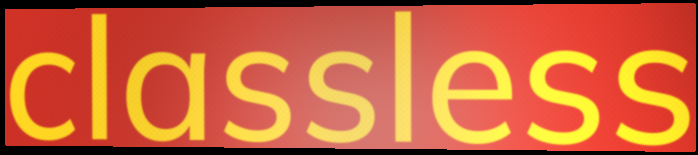
classless